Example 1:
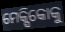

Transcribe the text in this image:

ମେକ୍ସିକୋକୁ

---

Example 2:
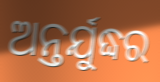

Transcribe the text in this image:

ଅନ୍ତର୍ଯୁଦ୍ଧର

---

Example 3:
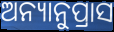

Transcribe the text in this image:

ଅନ୍ୟାନୁପ୍ରାସ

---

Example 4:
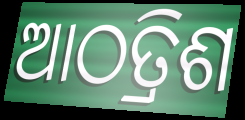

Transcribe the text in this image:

ଆଠତ୍ରିଶ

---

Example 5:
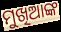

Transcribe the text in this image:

ମୁଖିଆଙ୍କ